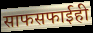
साफसफाईही